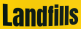
Landfills